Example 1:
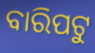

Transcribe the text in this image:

ବାରିପଟୁ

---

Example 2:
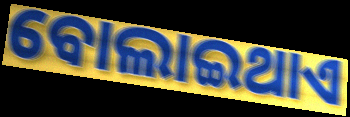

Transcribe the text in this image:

ବୋଲାଇଥାଏ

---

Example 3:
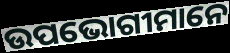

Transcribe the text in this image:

ଉପଭୋଗୀମାନେ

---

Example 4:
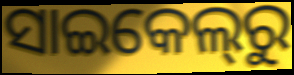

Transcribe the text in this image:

ସାଇକେଲ୍‌ରୁ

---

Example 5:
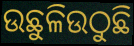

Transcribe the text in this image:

ଉଛୁଳିଉଠୁଛି